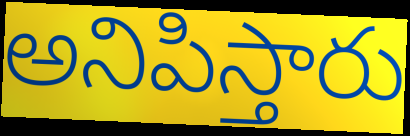
అనిపిస్తారు